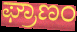
ಘ್ರಾಣಂ